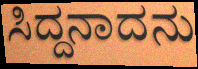
ಸಿದ್ದನಾದನು